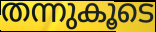
തന്നുകൂടെ